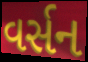
વર્સન